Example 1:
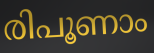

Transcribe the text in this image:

രിപൂണാം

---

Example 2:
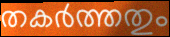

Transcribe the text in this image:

തകർത്തതും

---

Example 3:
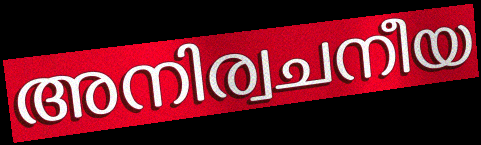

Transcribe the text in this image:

അനിര്വചനീയ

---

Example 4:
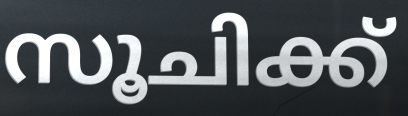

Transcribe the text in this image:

സൂചിക്ക്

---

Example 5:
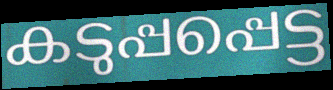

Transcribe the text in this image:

കടുപ്പപ്പെട്ട